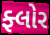
ફ્લોર